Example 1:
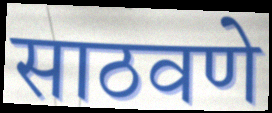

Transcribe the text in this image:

साठवणे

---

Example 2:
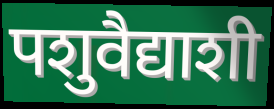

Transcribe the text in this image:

पशुवैद्याशी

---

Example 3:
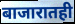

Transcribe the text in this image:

बाजारातही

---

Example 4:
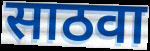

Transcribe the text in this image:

साठवा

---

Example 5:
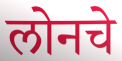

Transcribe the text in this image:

लोनचे